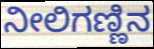
ನೀಲಿಗಣ್ಣಿನ